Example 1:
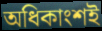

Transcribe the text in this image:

অধিকাংশই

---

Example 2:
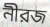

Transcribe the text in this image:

নীরজ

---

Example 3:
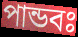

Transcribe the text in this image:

পান্ডবঃ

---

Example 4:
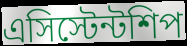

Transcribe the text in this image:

এসিস্টেন্টশিপ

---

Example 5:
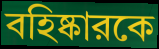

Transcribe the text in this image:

বহিষ্কারকে